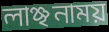
লাঞ্ছনাময়